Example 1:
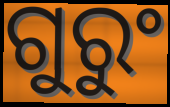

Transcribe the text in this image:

ଗୁରୁଂ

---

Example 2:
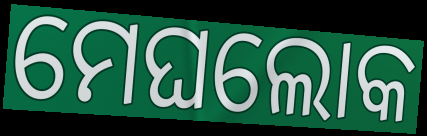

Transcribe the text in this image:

ମେଘଲୋକ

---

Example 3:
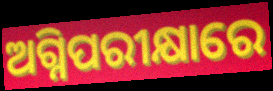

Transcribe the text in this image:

ଅଗ୍ନିପରୀକ୍ଷାରେ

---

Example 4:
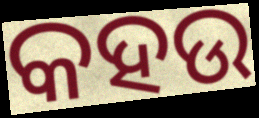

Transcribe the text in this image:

କହଉ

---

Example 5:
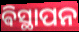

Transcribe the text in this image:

ଵିସ୍ଥାପନ